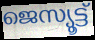
ജെസ്യൂട്ട്